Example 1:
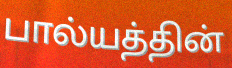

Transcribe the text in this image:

பால்யத்தின்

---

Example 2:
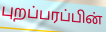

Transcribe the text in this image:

புறப்பரப்பின்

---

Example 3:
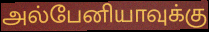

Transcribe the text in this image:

அல்பேனியாவுக்கு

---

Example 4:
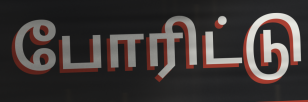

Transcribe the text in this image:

போரிட்டு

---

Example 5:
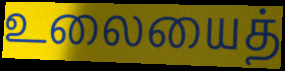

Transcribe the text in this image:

உலையைத்